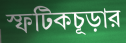
স্ফটিকচূড়ার